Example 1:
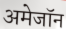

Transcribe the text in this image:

अमेजॉन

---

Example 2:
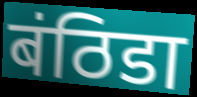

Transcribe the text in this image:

बंठिडा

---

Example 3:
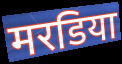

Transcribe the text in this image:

मरडिया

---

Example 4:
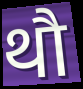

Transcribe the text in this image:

थौ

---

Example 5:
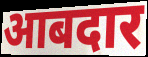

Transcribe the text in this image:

आबदार